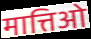
मात्तिओ